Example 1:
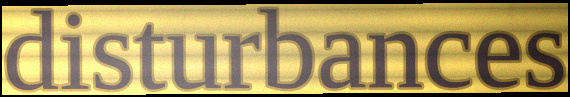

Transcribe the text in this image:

disturbances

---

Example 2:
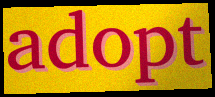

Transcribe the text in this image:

adopt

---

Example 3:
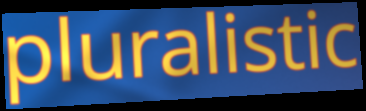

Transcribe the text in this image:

pluralistic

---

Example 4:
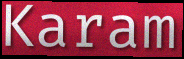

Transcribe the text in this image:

Karam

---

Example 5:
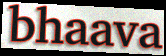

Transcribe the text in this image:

bhaava